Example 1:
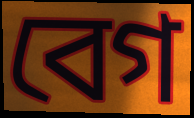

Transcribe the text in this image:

বেগ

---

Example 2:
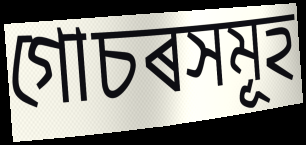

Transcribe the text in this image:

গোচৰসমূহ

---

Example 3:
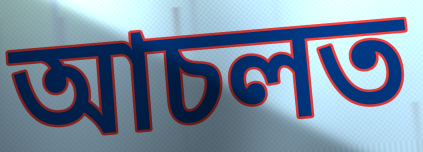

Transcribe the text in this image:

আচলত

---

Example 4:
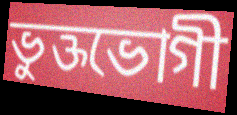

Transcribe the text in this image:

ভুক্তভোগী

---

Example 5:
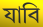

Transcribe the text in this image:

যাবি